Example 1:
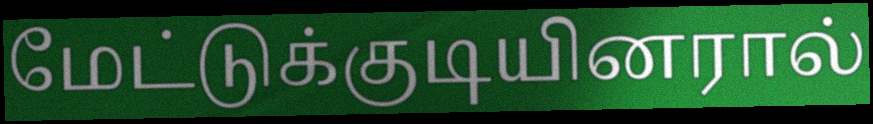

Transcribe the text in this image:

மேட்டுக்குடியினரால்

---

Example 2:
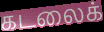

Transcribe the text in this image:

கடலைக்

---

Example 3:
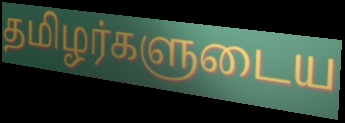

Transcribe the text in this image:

தமிழர்களுடைய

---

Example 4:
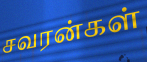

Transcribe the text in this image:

சவரன்கள்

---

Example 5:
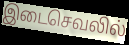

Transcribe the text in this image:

இடைசெவலில்